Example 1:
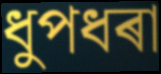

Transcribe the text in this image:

ধুপধৰা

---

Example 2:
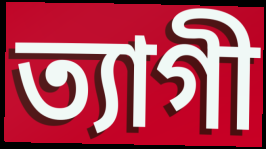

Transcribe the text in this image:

ত্যাগী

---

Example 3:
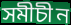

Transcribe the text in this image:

সমীচীন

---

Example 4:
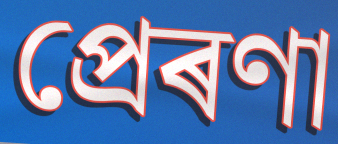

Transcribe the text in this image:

প্ৰেৰণা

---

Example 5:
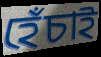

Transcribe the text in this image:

হেঁচাই